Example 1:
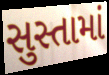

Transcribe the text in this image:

સુસ્તામાં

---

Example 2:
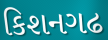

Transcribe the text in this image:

કિશનગઢ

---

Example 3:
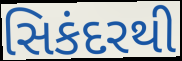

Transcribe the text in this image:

સિકંદરથી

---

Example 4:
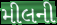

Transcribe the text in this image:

મીલની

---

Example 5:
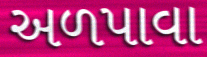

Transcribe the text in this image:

અળપાવા